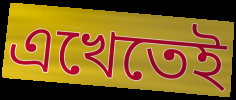
এখেতেই